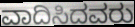
ವಾದಿಸಿದವರು